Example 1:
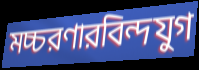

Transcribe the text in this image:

মচ্চরণারবিন্দযুগ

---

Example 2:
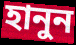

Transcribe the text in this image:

হানুন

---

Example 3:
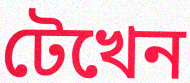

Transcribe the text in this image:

টেখেন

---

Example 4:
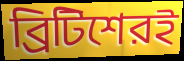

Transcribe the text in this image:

ব্রিটিশেরই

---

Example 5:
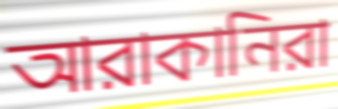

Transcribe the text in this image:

আরাকানিরা